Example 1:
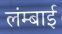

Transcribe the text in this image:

लंम्बाई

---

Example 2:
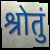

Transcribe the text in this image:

श्रोतुं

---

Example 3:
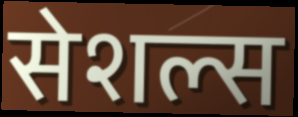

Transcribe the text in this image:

सेशल्स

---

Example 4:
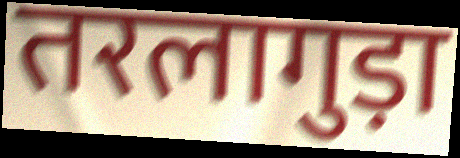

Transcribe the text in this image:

तरलागुड़ा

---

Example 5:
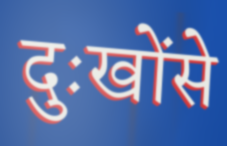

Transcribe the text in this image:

दुःखोंसे